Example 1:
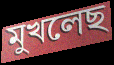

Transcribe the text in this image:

মুখলেছ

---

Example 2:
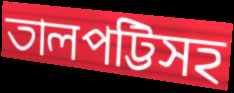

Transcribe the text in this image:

তালপট্টিসহ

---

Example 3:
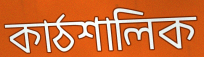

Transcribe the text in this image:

কাঠশালিক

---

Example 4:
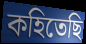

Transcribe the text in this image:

কহিতেছি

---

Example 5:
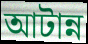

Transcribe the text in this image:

আটান্ন